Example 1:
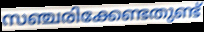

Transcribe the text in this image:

സഞ്ചരിക്കേണ്ടതുണ്ട്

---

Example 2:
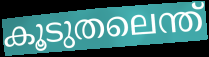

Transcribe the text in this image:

കൂടുതലെന്ത്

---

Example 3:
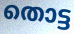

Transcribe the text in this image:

തൊട്ട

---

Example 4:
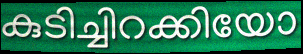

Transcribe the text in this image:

കുടിച്ചിറക്കിയോ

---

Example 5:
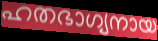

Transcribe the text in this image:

ഹതഭാഗ്യനായ